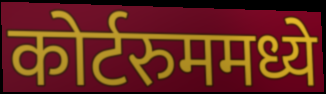
कोर्टरुममध्ये